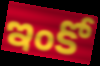
ఇంకో